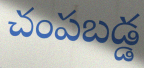
చంపబడ్డ